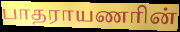
பாதராயணரின்